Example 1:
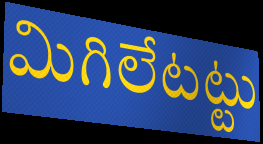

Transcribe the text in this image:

మిగిలేటట్టు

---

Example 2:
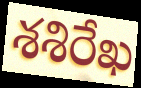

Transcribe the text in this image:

శశిరేఖ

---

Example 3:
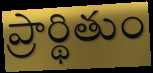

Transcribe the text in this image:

ప్రార్థితుం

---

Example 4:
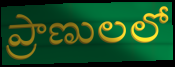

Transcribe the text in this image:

ప్రాణులలో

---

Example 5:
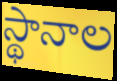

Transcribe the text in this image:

స్థానాల